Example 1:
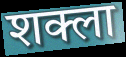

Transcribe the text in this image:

शक्ला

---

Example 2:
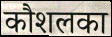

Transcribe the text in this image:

कौशलका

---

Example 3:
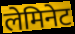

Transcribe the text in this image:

लेमिनेट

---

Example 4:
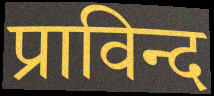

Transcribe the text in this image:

प्राविन्द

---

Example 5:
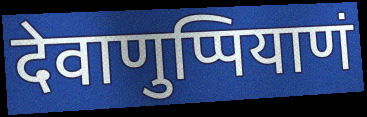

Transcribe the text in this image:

देवाणुप्पियाणं